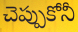
చెప్పుకోనీ